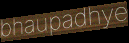
bhaupadhye